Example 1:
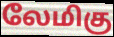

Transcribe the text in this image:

லேமிகு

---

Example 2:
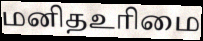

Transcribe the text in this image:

மனிதஉரிமை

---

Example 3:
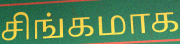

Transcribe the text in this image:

சிங்கமாக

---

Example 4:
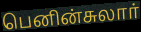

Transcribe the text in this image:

பெனின்சுலார்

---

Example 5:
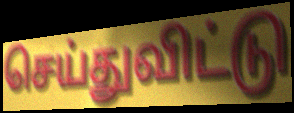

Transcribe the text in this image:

செய்துவிட்டு